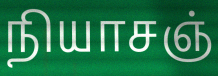
நியாசஞ்